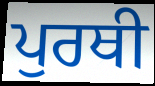
ਪੁਰਥੀ